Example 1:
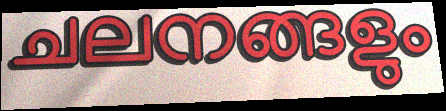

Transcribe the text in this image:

ചലനങ്ങളും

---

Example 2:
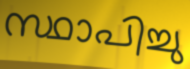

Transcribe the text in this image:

സ്ഥാപിച്ചു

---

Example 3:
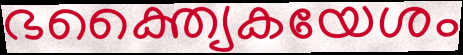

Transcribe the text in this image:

ഭക്ത്യൈകയേശം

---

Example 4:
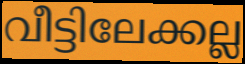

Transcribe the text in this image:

വീട്ടിലേക്കല്ല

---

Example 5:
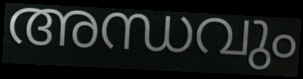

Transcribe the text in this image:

അന്ധവും